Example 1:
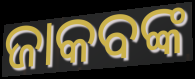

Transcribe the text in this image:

ଜାକବଙ୍କ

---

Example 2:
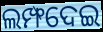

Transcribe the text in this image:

ଲମ୍ଫଦେଇ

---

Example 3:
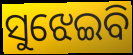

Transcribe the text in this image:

ସୁଝେଇବି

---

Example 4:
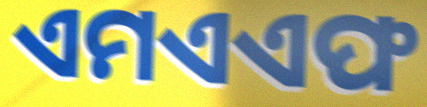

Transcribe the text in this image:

ଏମଏଏଫ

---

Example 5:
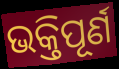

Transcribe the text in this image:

ଭକ୍ତିପୂର୍ଣ